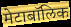
मेटाबॉलिक